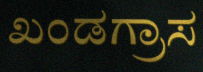
ಖಂಡಗ್ರಾಸ